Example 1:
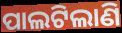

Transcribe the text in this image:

ପାଲଟିଲାଣି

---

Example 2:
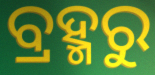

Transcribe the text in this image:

ବ୍ରହ୍ମରୁ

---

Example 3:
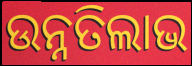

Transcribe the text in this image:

ଉନ୍ନତିଲାଭ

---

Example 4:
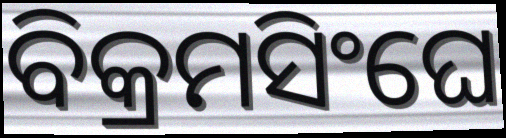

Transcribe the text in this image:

ବିକ୍ରମସିଂଘେ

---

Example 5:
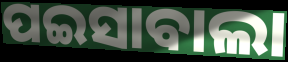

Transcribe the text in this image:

ପଇସାବାଲା